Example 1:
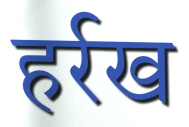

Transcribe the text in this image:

हर्रख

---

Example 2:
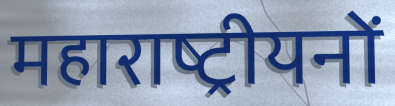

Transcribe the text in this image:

महाराष्ट्रीयनों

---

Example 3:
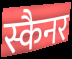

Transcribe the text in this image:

स्कैनर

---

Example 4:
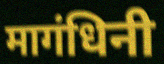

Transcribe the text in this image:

मागंधिनी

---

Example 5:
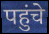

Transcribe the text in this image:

पहुंचे